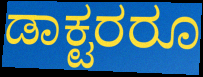
ಡಾಕ್ಟರರೂ